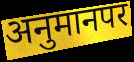
अनुमानपर